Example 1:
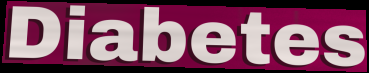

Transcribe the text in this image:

Diabetes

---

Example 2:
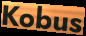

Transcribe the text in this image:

Kobus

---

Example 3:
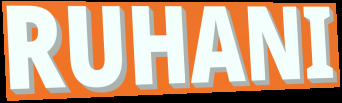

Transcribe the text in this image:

RUHANI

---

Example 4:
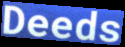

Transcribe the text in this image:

Deeds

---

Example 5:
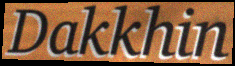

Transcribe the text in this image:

Dakkhin